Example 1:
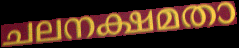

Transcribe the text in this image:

ചലനക്ഷമതാ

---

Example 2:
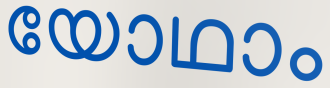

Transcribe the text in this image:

യോഥാം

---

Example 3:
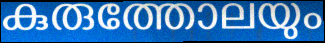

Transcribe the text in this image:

കുരുത്തോലയും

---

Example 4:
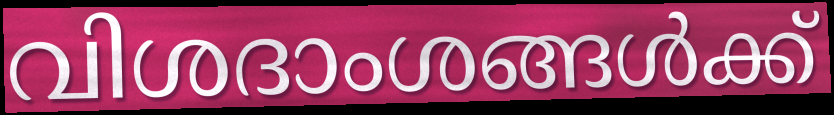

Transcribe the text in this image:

വിശദാംശങ്ങൾക്ക്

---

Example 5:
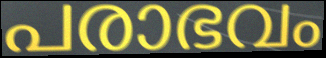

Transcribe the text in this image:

പരാഭവം